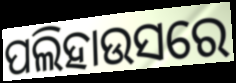
ପଲିହାଉସରେ